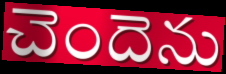
చెందెను